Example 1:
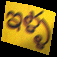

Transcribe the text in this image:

ఇళ్ళ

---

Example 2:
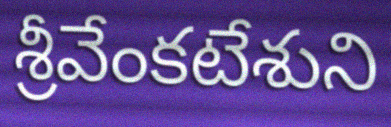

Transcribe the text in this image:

శ్రీవేంకటేశుని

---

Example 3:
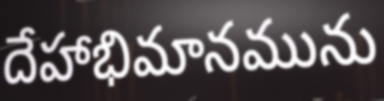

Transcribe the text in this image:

దేహాభిమానమును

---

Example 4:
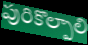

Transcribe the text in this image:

పురికొల్పాలి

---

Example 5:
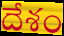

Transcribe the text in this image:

దేశం